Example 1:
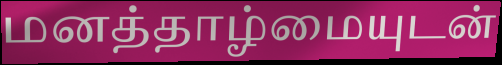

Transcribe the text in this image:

மனத்தாழ்மையுடன்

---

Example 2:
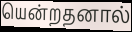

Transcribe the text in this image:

யென்றதனால்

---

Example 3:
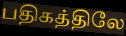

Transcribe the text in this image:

பதிகத்திலே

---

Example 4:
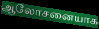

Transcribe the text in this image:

ஆலோசனையாக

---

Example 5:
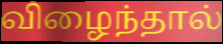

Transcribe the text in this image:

விழைந்தால்